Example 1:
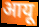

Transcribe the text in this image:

आयू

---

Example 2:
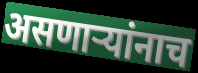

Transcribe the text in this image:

असणार्‍यांनाच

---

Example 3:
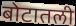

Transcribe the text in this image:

बोटातली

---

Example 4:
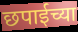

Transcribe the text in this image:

छपाईच्या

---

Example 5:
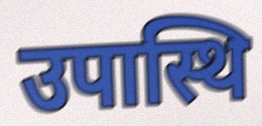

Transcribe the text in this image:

उपास्थि